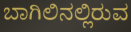
ಬಾಗಿಲಿನಲ್ಲಿರುವ